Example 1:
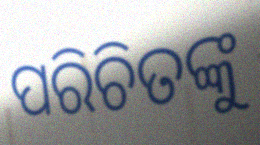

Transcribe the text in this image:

ପରିଚିତଙ୍କୁ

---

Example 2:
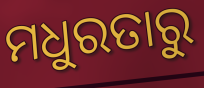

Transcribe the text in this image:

ମଧୁରତାରୁ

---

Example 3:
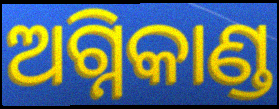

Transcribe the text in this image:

ଅଗ୍ନିକାଣ୍ଡ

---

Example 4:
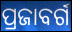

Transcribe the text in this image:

ପ୍ରଜାବର୍ଗ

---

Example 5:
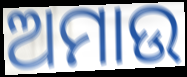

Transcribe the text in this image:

ଅମାଉ